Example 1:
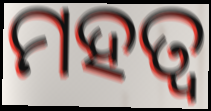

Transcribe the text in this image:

ମହତ୍ବ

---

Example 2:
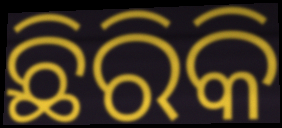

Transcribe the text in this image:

ଛିରିକି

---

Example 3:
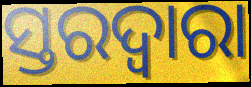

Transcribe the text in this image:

ସ୍ତରଦ୍ୱାରା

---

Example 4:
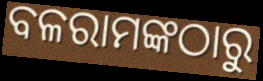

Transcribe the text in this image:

ବଳରାମଙ୍କଠାରୁ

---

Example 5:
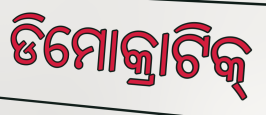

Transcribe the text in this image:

ଡିମୋକ୍ରାଟିକ୍